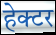
हेक्‍टर